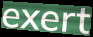
exert